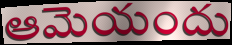
ఆమెయందు